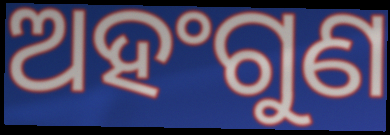
ଅହଂଗୁଣ